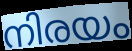
നിരയം